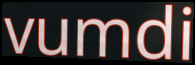
vumdi